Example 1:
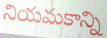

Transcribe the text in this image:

నియమకాన్ని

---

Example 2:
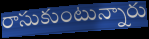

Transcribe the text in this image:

రాసుకుంటున్నారు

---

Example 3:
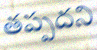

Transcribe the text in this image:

తప్పదని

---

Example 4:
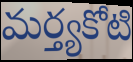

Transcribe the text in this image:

మర్త్యకోటి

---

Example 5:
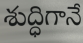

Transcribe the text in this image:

శుద్ధిగానే